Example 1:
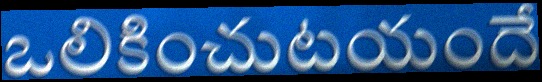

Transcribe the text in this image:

ఒలికించుటయందే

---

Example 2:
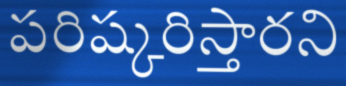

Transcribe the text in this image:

పరిష్కరిస్తారని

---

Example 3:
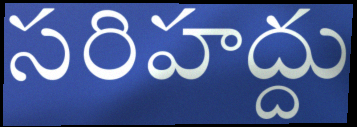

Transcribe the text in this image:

సరిహద్దు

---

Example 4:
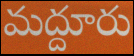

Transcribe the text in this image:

మద్దూరు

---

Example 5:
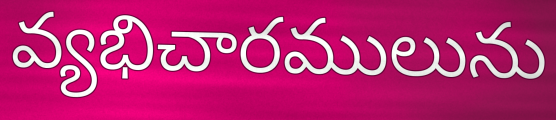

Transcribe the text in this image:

వ్యభిచారములును